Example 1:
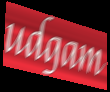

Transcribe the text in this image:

udgam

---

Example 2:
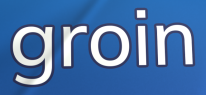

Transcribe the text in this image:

groin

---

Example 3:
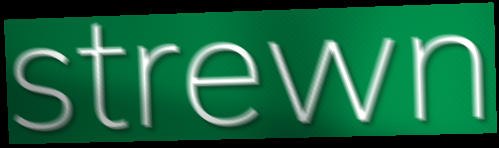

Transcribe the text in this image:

strewn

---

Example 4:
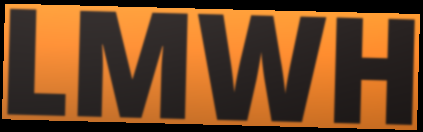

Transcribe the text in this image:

LMWH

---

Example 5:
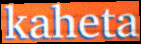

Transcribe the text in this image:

kaheta